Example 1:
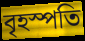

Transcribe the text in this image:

বৃহস্পতি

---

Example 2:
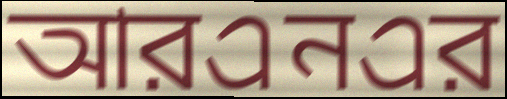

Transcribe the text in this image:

আরএনএর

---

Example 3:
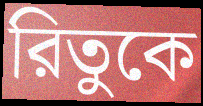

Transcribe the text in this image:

রিতুকে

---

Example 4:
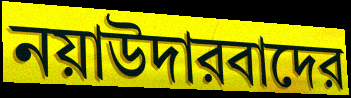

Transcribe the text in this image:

নয়াউদারবাদের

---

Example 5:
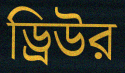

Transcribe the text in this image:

ড্রিউর